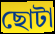
ছোটা